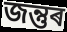
জন্তুৰ